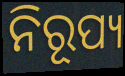
ନିରୂପ୍ୟ